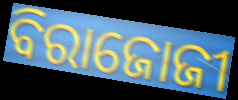
ବିରାଜୋଜୀ